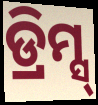
ଡ୍ରିମ୍ସ୍